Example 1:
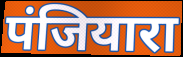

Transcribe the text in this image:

पंजियारा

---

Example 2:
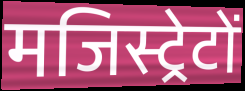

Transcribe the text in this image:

मजिस्ट्रेटों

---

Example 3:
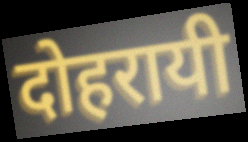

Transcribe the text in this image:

दोहरायी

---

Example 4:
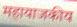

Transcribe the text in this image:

महायाजकीय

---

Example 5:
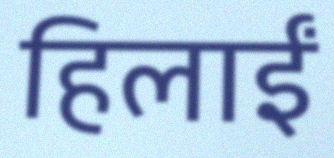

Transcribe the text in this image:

हिलाईं